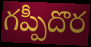
గప్పీదొర